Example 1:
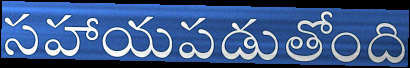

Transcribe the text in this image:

సహాయపడుతోంది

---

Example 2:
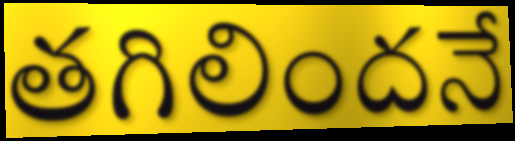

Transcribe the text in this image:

తగిలిందనే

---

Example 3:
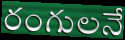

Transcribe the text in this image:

రంగులనే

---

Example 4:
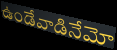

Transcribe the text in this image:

ఉండేవాడినేమో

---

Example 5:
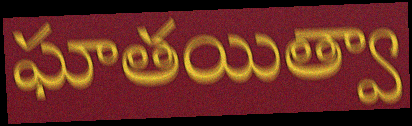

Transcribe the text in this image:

ఘాతయిత్వా